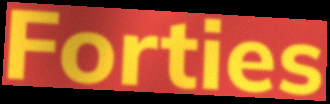
Forties